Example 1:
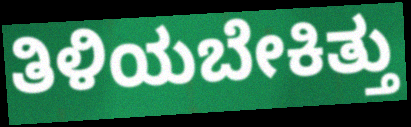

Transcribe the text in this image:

ತಿಳಿಯಬೇಕಿತ್ತು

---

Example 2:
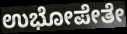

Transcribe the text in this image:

ಉಭೋಪೇತೇ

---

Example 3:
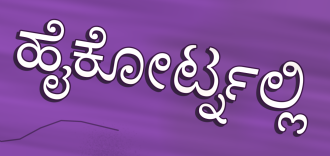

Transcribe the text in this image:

ಹೈಕೋರ್ಟ್ನಲ್ಲಿ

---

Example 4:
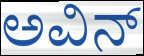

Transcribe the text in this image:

ಅವಿನ್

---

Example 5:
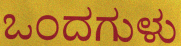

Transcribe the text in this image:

ಒಂದಗುಳು